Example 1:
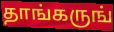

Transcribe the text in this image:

தாங்கருங்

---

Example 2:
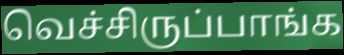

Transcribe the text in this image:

வெச்சிருப்பாங்க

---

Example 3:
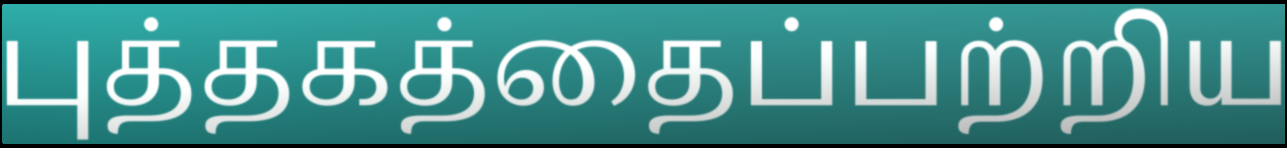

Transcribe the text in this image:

புத்தகத்தைப்பற்றிய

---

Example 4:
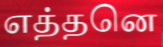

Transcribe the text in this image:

எத்தனெ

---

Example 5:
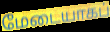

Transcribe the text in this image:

மேடையாகப்